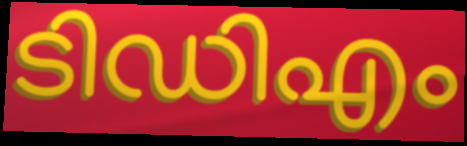
ടിഡിഎം